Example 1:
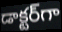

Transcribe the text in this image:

డాక్టర్‌గా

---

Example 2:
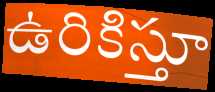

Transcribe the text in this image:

ఉరికిస్తూ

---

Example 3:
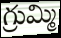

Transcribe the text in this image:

గ్రుమ్మి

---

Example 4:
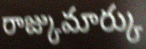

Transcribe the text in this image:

రాజ్కుమార్కు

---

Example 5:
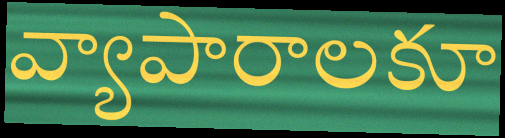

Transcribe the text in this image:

వ్యాపారాలకూ